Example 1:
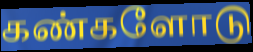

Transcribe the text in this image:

கண்களோடு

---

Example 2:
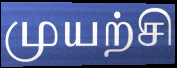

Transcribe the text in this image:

முயற்சி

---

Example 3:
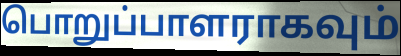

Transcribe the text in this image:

பொறுப்பாளராகவும்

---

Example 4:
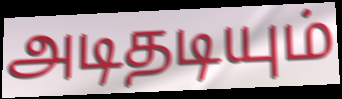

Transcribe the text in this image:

அடிதடியும்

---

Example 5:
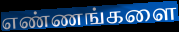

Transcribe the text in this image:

எண்ணங்களை